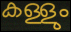
കള്ളും